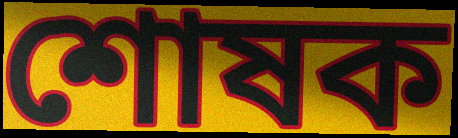
শোষক